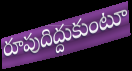
రూపుదిద్దుకుంటూ